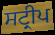
ਸਟ੍ਰੀਪ